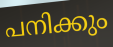
പനിക്കും